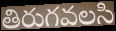
తిరుగవలసి